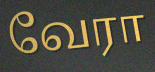
வேரா